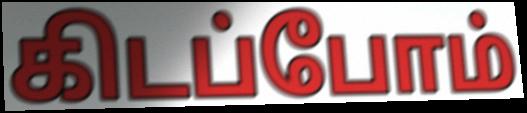
கிடப்போம்